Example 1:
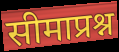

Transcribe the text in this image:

सीमाप्रश्न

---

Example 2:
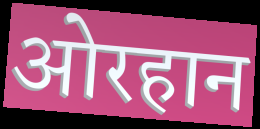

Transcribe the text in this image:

ओरहान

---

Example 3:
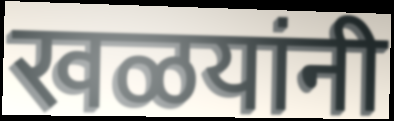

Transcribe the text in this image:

खळयांनी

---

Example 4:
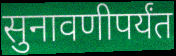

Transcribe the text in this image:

सुनावणीपर्यंत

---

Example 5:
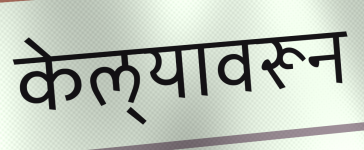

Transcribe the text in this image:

केल्यावरून